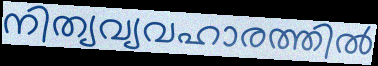
നിത്യവ്യവഹാരത്തിൽ